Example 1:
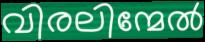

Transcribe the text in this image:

വിരലിന്മേൽ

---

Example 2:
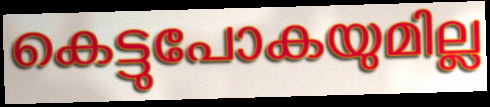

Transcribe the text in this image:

കെട്ടുപോകയുമില്ല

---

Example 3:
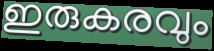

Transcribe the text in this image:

ഇരുകരവും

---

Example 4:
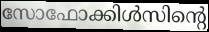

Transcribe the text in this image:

സോഫോക്കിൾസിന്റെ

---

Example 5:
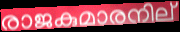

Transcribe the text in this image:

രാജകുമാരനില്